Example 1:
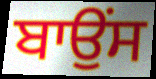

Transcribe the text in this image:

ਬਾਉਂਸ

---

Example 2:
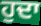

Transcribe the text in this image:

ਹੁਦਾ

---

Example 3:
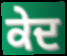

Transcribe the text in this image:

ਕੇਦ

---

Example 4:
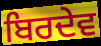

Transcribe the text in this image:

ਬਿਰਦੇਵ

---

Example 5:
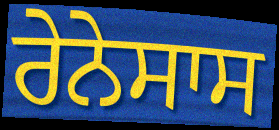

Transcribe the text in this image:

ਰੇਨੇਸਾਸ